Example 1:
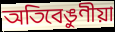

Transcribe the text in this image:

অতিবেঙুণীয়া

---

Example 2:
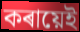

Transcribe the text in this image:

কৰায়েই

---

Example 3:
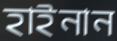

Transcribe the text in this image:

হাইনান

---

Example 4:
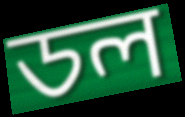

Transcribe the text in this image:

ডল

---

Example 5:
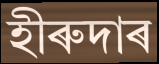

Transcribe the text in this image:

হীৰুদাৰ